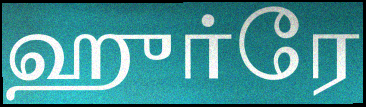
ஹுர்ரே